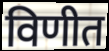
विणीत